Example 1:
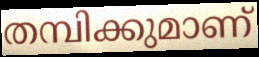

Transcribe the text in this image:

തമ്പിക്കുമാണ്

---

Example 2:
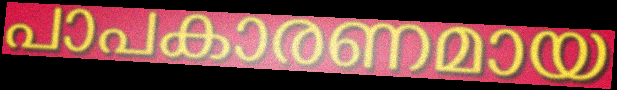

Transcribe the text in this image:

പാപകാരണമായ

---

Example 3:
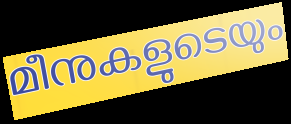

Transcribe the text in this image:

മീനുകളുടെയും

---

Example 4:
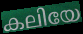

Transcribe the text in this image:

കലിയേ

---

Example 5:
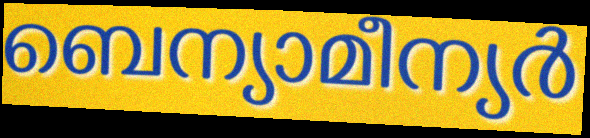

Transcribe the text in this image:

ബെന്യാമീന്യർ